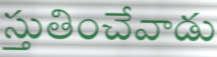
స్తుతించేవాడు